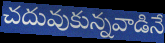
చదువుకున్నవాడినే